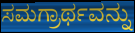
ಸಮಗ್ರಾರ್ಥವನ್ನು